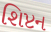
શિપ્ટન